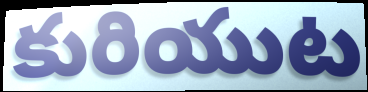
కురియుట